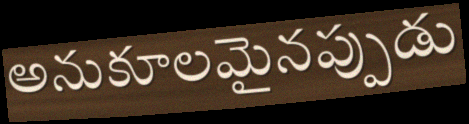
అనుకూలమైనప్పుడు